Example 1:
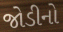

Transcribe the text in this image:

જોડીનો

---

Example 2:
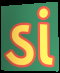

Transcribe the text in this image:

ડાં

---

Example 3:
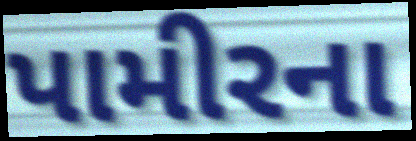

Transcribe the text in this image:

પામીરના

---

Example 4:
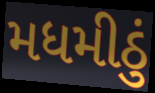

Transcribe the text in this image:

મધમીઠું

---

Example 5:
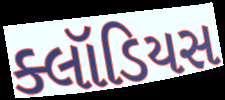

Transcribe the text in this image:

ક્લૉડિયસ